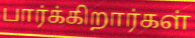
பார்க்கிறார்கள்